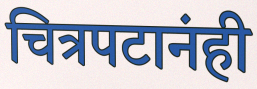
चित्रपटानंही